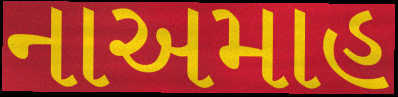
નાઅમાહ